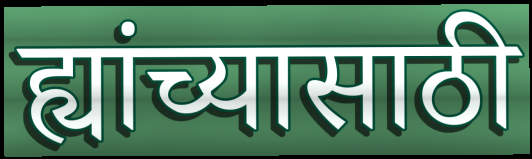
ह्यांच्यासाठी